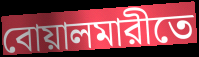
বোয়ালমারীতে